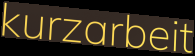
kurzarbeit